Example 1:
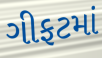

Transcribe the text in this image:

ગીફટમાં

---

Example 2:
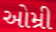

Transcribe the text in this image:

ઓમ્રી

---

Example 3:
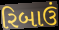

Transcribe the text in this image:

રિબાઉં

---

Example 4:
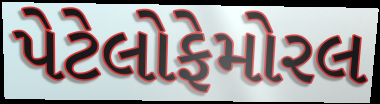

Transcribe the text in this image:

પેટેલોફેમોરલ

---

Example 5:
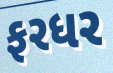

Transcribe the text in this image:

ફરધર